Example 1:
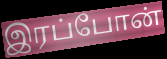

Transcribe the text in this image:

இரப்போன்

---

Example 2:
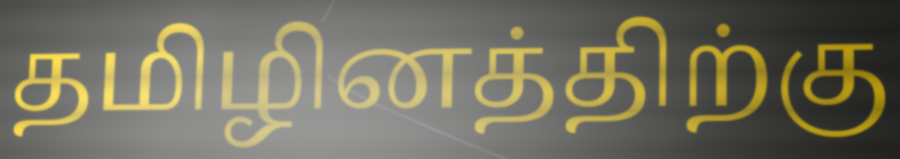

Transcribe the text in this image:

தமிழினத்திற்கு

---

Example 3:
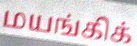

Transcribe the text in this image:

மயங்கிக்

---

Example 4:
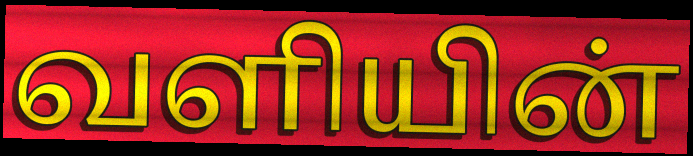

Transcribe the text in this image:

வளியின்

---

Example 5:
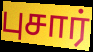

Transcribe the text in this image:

புசார்